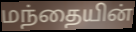
மந்தையின்